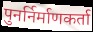
पुनर्निर्माणकर्ता